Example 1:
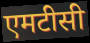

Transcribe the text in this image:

एमटीसी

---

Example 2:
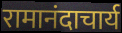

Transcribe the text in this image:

रामानंदाचार्य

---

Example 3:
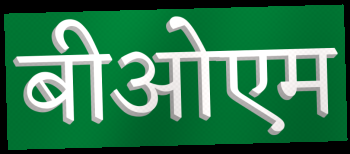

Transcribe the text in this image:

बीओएम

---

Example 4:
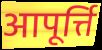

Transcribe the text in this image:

आपूर्त्ति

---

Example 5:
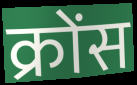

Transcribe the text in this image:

क्रोंस